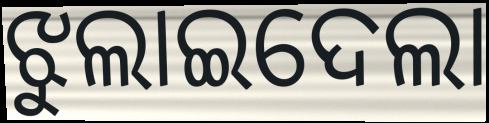
ଝୁଲାଇଦେଲା